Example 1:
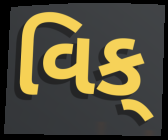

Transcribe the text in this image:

વિક્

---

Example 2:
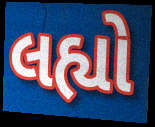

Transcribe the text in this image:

લહ્યો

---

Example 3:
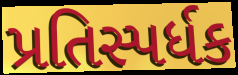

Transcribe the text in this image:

પ્રતિસ્પર્ધક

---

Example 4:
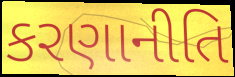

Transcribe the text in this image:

કરણાનીતિ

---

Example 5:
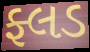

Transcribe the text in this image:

ફ્લડ